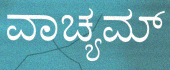
ವಾಚ್ಯಮ್